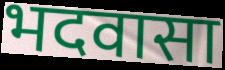
भदवासा